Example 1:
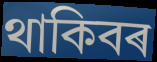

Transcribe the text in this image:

থাকিবৰ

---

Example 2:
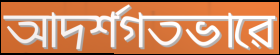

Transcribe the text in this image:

আদৰ্শগতভাৱে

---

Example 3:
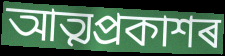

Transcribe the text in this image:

আত্মপ্ৰকাশৰ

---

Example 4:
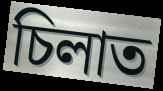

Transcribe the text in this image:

চিলাত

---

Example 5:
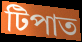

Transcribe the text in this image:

টিপাত